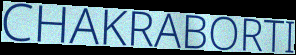
CHAKRABORTI